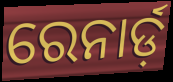
ରେନାର୍ଡ଼